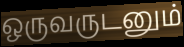
ஒருவருடனும்